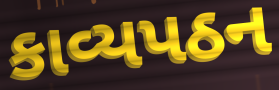
કાવ્યપઠન